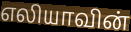
எலியாவின்